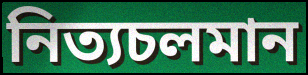
নিত্যচলমান